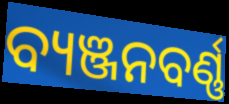
ବ୍ୟଞ୍ଜନବର୍ଣ୍ଣ